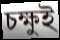
চক্ষুই